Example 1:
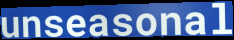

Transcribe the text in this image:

unseasonal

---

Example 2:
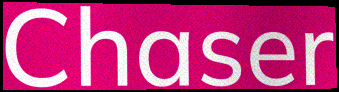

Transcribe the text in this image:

Chaser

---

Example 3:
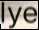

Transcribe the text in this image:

Iye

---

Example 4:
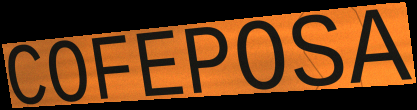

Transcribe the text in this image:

COFEPOSA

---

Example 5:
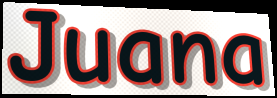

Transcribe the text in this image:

Juana